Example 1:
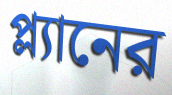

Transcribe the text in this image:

প্ল্যানের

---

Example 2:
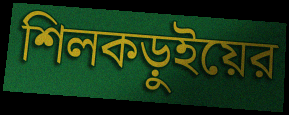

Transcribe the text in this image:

শিলকড়ুইয়ের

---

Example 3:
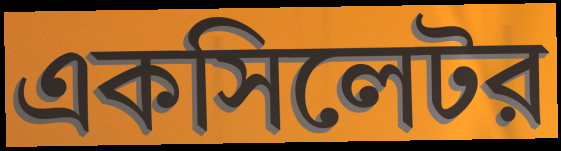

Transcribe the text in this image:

একসিলেটর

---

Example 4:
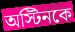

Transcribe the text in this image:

অস্টিনকে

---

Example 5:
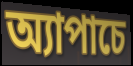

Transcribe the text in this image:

অ্যাপাচে